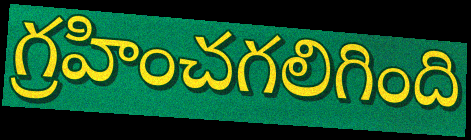
గ్రహించగలిగింది